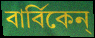
বার্বিকেন্